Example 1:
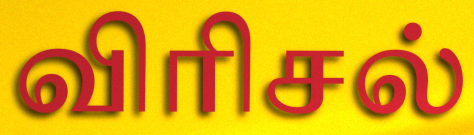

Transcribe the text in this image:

விரிசல்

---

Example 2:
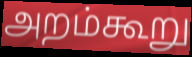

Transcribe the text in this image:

அறம்கூறு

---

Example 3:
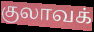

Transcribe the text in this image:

குலாவக்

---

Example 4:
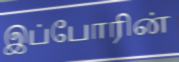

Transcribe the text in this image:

இப்போரின்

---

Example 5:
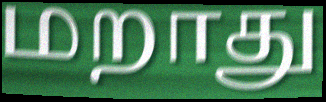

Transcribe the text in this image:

மறாது